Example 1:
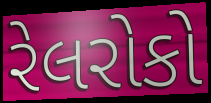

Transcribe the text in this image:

રેલરોકો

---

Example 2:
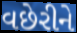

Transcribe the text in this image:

વછેરીને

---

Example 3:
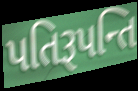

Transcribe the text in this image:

પતિરૂપન્તિ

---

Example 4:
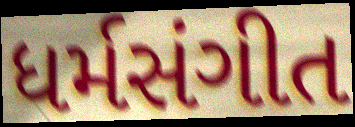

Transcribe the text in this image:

ધર્મસંગીત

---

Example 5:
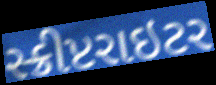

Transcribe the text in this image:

સ્ક્રીપ્ટરાઇટર